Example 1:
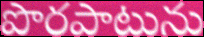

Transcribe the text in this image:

పొరపాటును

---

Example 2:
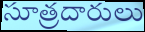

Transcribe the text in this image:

సూత్రదారులు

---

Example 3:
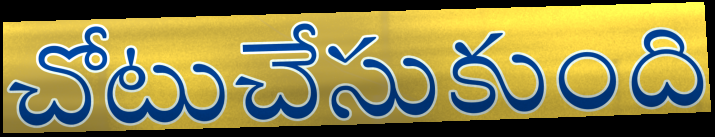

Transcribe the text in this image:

చోటుచేసుకుంది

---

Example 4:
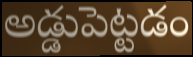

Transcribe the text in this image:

అడ్డుపెట్టడం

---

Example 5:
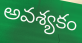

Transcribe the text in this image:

అవశ్యకం